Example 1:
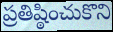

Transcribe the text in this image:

ప్రతిష్ఠించుకొని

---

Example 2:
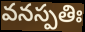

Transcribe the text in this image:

వనస్పతిః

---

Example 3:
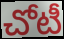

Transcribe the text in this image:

చోటీ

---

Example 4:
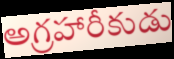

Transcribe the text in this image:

అగ్రహారీకుడు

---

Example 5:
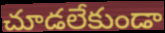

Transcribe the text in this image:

చూడలేకుండా